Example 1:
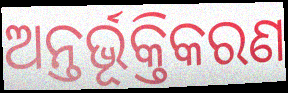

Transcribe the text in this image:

ଅନ୍ତର୍ଭୂକ୍ତିକରଣ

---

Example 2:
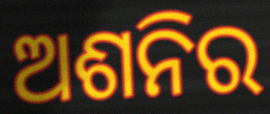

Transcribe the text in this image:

ଅଶନିର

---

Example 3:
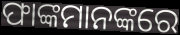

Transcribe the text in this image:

ଫାଙ୍କମାନଙ୍କରେ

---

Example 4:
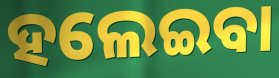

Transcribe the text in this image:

ହଲେଇବା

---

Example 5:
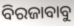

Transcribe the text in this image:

ବିରଜାବାବୁ